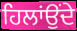
ਹਿਲਾਂਉਂਦੇ